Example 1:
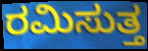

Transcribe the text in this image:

ರಮಿಸುತ್ತ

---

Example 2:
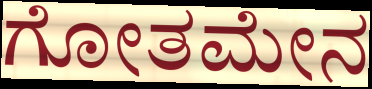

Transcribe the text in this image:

ಗೋತಮೇನ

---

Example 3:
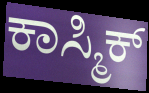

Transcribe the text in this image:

ಕಾಸ್ಮಿಕ್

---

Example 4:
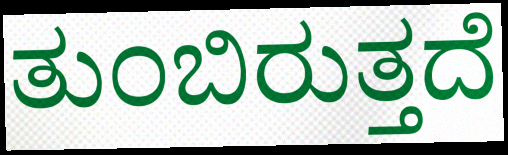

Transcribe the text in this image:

ತುಂಬಿರುತ್ತದೆ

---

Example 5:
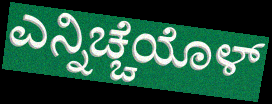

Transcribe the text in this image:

ಎನ್ನಿಚ್ಚೆಯೊಳ್